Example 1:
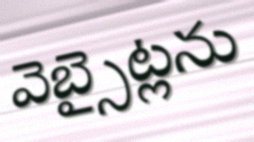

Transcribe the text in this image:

వెబ్సైట్లను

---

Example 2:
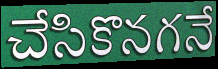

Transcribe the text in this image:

చేసికొనగనే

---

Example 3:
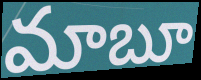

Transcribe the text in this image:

మాబూ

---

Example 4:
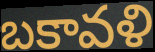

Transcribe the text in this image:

బకావళి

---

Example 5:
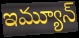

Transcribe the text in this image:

ఇమ్యూన్